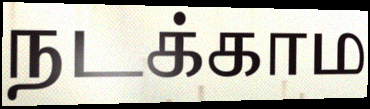
நடக்காம